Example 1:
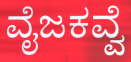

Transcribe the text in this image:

ವೈಜಕವ್ವೆ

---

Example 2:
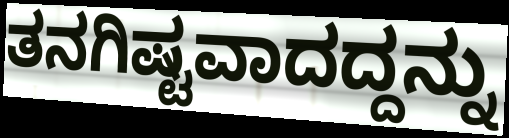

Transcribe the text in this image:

ತನಗಿಷ್ಟವಾದದ್ದನ್ನು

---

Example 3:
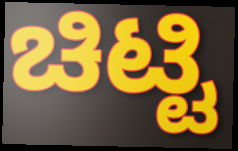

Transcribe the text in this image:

ಚಿಟ್ಟಿ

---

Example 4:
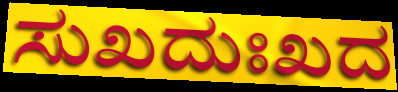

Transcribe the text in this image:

ಸುಖದುಃಖದ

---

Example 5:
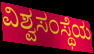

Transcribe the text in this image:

ವಿಶ್ವಸಂಸ್ಥೆಯ